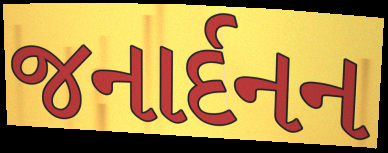
જનાર્દનન